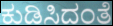
ಕುಡಿಸಿದಂತೆ